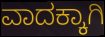
ವಾದಕ್ಕಾಗಿ